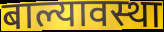
बाल्यावस्था